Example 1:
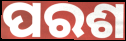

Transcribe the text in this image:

ପରଶ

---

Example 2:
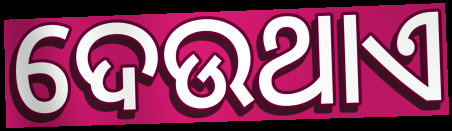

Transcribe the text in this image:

ଦେଉଥାଏ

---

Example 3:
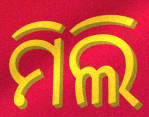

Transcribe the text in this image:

ମିଲି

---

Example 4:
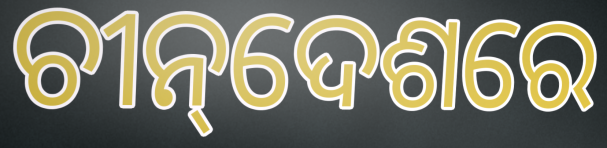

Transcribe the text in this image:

ଚୀନ୍‌ଦେଶରେ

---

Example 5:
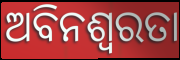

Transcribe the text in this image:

ଅବିନଶ୍ୱରତା